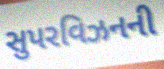
સુપરવિઝનની